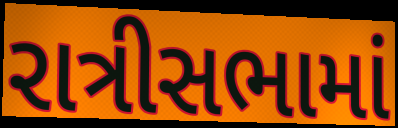
રાત્રીસભામાં